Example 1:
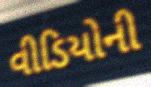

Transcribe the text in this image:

વીડિયોની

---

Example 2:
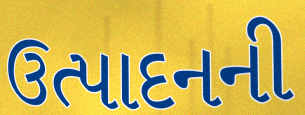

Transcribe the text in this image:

ઉત્પાદનની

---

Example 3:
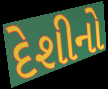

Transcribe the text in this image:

દેશીનો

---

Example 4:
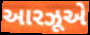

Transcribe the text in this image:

આરઝૂએ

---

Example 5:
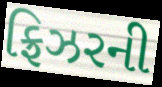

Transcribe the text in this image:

ફ્રિઝરની